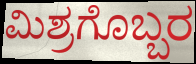
ಮಿಶ್ರಗೊಬ್ಬರ